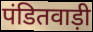
पंडितवाड़ी